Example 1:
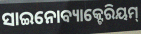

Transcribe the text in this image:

ସାଇନୋବ୍ୟାକ୍ଟେରିୟମ୍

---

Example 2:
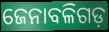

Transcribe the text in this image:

ଜେନାବଳିଗଡ଼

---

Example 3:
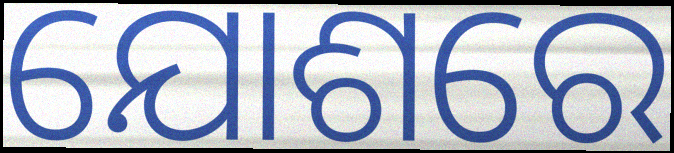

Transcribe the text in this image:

ଯୋଶରେ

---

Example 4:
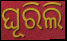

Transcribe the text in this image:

ଘୂରିଲି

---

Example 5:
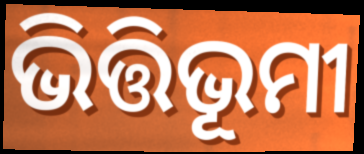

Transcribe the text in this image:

ଭିତ୍ତିଭୂମୀ